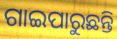
ଗାଇପାରୁଛନ୍ତି